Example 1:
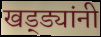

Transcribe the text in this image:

खड्ड्यांनी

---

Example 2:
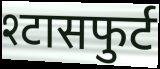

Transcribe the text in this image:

श्टासफुर्ट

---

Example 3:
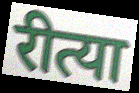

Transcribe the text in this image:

रीत्या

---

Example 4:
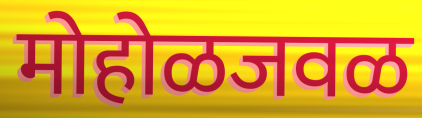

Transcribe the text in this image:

मोहोळजवळ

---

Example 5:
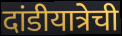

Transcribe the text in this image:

दांडीयात्रेची